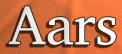
Aars